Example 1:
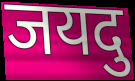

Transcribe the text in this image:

जयदु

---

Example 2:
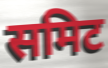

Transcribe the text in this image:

समिट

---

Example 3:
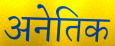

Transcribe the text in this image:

अनेतिक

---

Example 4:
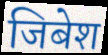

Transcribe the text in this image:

जिबेश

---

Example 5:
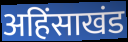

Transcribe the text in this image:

अहिंसाखंड